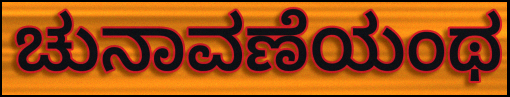
ಚುನಾವಣೆಯಂಥ